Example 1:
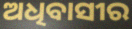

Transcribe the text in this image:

ଅଧିବାସୀର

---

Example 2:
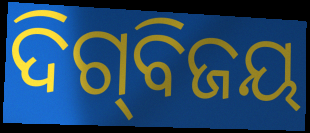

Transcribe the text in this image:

ଦିଗ୍‌ବିଜୟ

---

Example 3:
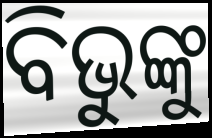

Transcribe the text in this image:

ବିଭୁଙ୍କୁ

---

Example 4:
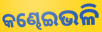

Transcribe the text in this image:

କଣ୍ଢେଇଭଳି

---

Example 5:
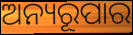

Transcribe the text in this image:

ଅନ୍ୟରୂପାର